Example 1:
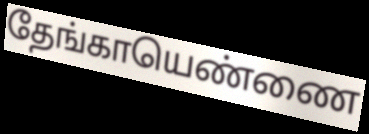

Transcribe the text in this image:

தேங்காயெண்ணை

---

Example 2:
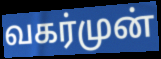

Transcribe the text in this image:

வகர்முன்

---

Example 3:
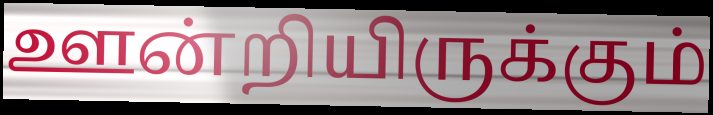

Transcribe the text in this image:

ஊன்றியிருக்கும்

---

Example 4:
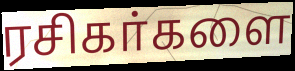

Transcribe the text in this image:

ரசிகர்களை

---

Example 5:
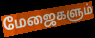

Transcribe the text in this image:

மேஜைகளும்